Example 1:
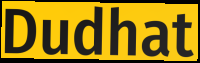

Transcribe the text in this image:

Dudhat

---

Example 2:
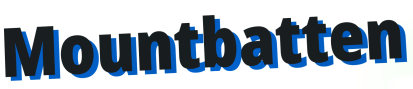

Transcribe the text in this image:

Mountbatten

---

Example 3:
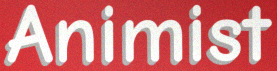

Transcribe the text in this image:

Animist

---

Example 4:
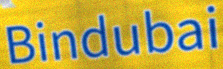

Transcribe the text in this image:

Bindubai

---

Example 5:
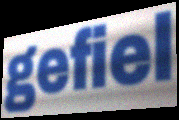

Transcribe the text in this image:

gefiel